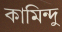
কামিন্দু